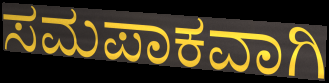
ಸಮಪಾಕವಾಗಿ